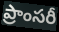
ప్రాంసరీ